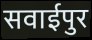
सवाईपुर